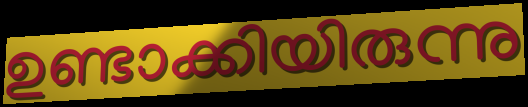
ഉണ്ടാക്കിയിരുന്നു